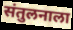
संतुलनाला